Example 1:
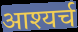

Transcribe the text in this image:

आश्यर्च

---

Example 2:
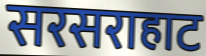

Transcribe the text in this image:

सरसराहाट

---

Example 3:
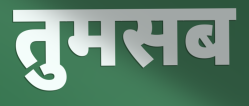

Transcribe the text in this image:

तुमसब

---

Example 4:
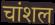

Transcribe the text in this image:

चांशल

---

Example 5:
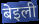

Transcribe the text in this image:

बेइली